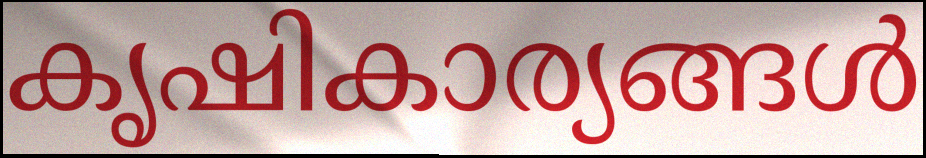
കൃഷികാര്യങ്ങൾ